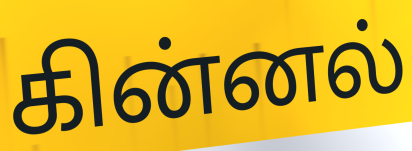
கின்னல்